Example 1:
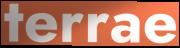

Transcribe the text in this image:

terrae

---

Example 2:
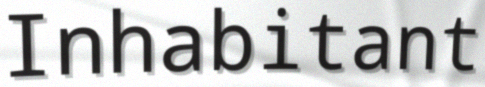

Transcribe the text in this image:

Inhabitant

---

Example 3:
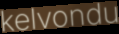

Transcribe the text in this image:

kelvondu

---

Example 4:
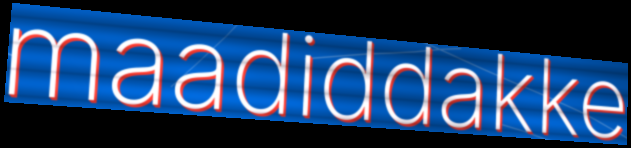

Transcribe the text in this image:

maadiddakke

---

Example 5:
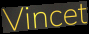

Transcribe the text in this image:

Vincet